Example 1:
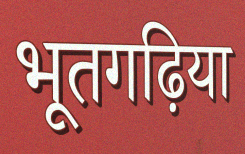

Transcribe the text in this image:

भूतगढ़िया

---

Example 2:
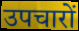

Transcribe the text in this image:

उपचारों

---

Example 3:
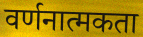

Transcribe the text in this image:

वर्णनात्मकता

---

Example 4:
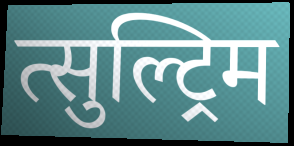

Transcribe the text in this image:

त्सुल्ट्रिम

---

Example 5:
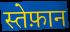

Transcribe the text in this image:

स्तेफ़ान